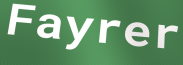
Fayrer